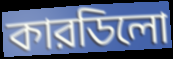
কারডিলো